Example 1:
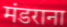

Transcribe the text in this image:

मंडराना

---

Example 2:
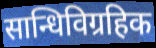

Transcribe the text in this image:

सान्धिविग्रहिक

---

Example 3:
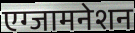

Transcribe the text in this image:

एग्जामनेशन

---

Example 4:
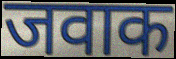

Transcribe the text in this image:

जवाक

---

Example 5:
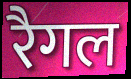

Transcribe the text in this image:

रैगल